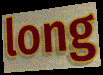
long